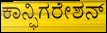
ಕಾನ್ಫಿಗರೇಶನ್